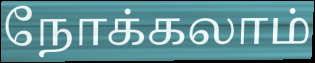
நோக்கலாம்